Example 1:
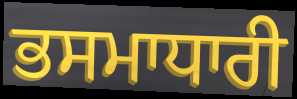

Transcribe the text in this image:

ਭਸਮਾਧਾਰੀ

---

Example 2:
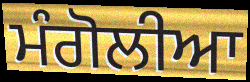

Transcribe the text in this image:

ਮੰਗੋਲੀਆ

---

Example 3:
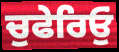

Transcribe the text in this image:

ਚੁਫੇਰਿਓੁਂ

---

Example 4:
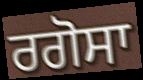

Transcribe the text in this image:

ਰਗੋਸਾ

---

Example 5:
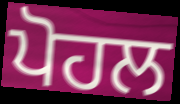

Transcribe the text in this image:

ਪੋਹਲ